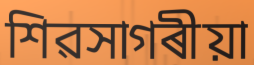
শিৱসাগৰীয়া